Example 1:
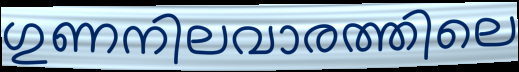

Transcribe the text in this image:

ഗുണനിലവാരത്തിലെ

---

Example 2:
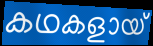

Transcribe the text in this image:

കഥകളായ്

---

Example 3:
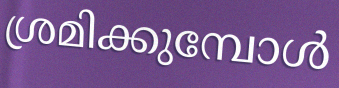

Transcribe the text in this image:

ശ്രമിക്കുമ്പോൾ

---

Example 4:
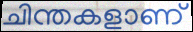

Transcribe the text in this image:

ചിന്തകളാണ്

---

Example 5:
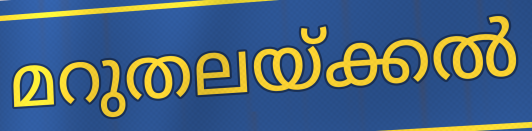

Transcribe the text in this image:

മറുതലയ്ക്കൽ